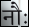
नौः